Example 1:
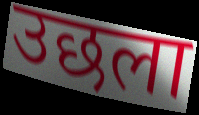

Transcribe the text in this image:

उछला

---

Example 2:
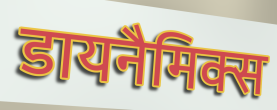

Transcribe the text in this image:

डायनैमिक्स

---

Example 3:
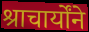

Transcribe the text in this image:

श्राचार्योंने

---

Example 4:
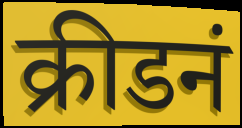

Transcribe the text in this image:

क्रीडनं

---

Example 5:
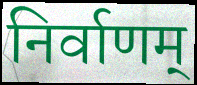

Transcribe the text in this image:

निर्वाणम्